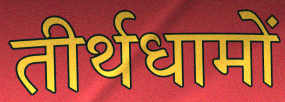
तीर्थधामों